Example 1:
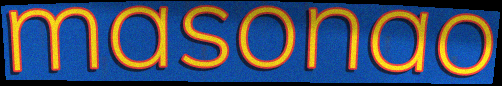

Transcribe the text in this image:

masonao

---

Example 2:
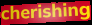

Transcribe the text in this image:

cherishing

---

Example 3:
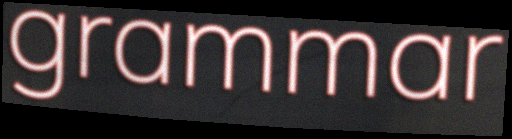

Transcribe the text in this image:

grammar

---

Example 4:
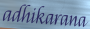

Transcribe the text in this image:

adhikarana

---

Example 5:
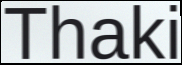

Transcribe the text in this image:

Thaki